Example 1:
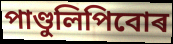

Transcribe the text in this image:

পাণ্ডুলিপিবোৰ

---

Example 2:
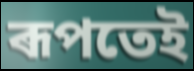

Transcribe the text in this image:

ৰূপতেই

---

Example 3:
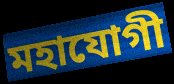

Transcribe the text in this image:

মহাযোগী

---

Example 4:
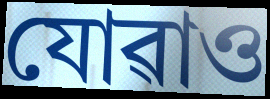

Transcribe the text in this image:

যোৱাও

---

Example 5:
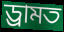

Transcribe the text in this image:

ড্ৰামত